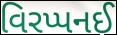
વિરપ્પનઈ